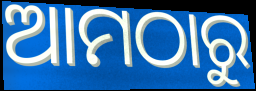
ଆମଠାରୁ